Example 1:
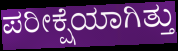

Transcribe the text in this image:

ಪರೀಕ್ಷೆಯಾಗಿತ್ತು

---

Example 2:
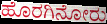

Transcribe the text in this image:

ಹೊರಗಿನೋರು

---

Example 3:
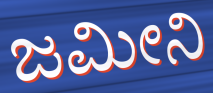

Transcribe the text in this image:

ಜಮೀನಿ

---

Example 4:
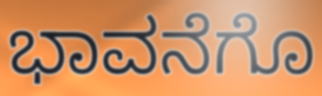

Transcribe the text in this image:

ಭಾವನೆಗೊ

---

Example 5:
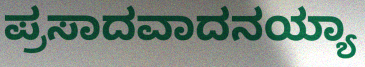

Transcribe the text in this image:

ಪ್ರಸಾದವಾದನಯ್ಯಾ